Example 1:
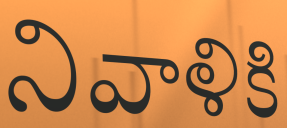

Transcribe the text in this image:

నివాళికి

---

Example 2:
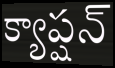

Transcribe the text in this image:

క్యాప్షన్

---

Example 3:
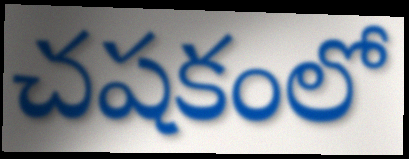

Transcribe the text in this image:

చషకంలో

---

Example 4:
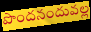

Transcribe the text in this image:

పొందనందువల్ల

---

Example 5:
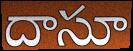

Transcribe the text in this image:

దాసూ